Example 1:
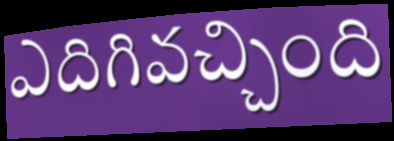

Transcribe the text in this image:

ఎదిగివచ్చింది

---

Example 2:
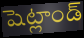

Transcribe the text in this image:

షెట్లాండ్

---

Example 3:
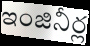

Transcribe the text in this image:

ఇంజినీర్ల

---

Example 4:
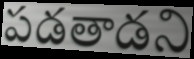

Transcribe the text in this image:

పడతాడని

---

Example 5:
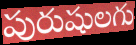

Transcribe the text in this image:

పురుషులగు